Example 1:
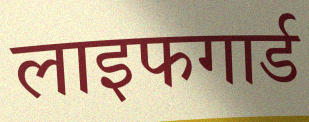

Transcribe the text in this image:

लाइफगार्ड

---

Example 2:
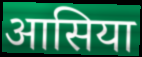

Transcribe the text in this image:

आसिया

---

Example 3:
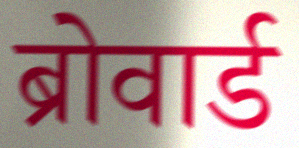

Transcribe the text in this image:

ब्रोवार्ड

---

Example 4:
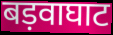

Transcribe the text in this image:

बड़वाघाट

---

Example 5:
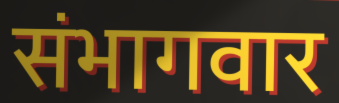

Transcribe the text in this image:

संभागवार